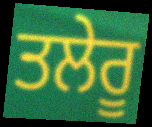
ਤਲੇਰੂ